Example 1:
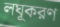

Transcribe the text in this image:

লঘূকরণ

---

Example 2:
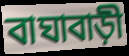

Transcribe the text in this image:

বাঘাবাড়ী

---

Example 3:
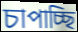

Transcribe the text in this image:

চাপাচ্ছি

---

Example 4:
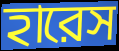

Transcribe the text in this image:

হারেস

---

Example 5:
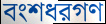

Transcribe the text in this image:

বংশধরগণ